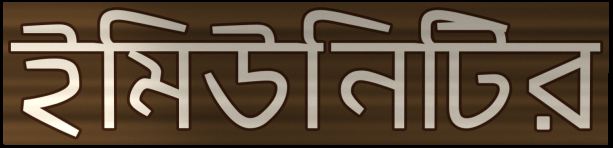
ইমিউনিটির